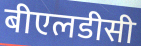
बीएलडीसी